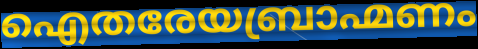
ഐതരേയബ്രാഹ്മണം